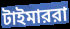
টাইমাররা